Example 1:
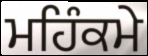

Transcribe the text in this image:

ਮਹਿੰਕਮੇ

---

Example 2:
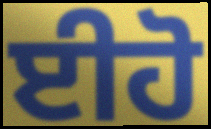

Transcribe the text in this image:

ਈਹੋ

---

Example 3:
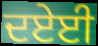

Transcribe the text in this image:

ਦਏਈ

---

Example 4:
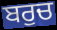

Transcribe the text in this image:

ਬਰੁਚ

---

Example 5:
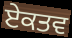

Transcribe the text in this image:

ਏਕਤਵ